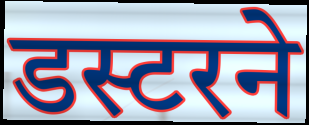
डस्टरने